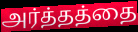
அர்த்தத்தை